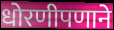
धोरणीपणाने